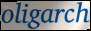
oligarch